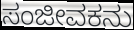
ಸಂಜೀವಕನು